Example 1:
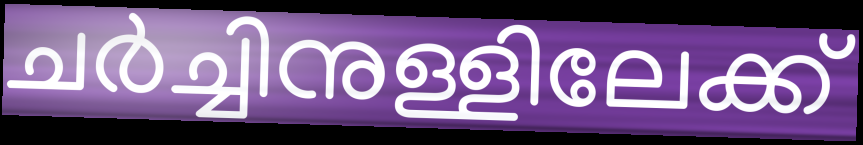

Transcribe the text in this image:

ചർച്ചിനുള്ളിലേക്ക്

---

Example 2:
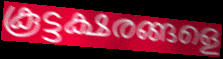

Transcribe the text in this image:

കൂട്ടക്ഷരങ്ങളെ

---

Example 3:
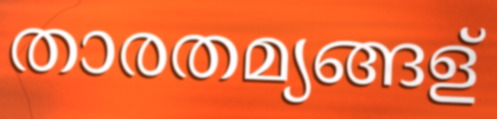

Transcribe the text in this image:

താരതമ്യങ്ങള്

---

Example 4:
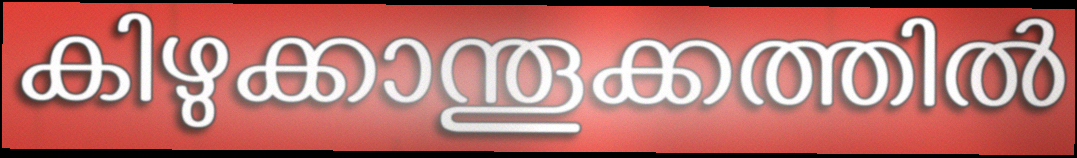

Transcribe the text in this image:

കിഴുക്കാന്തൂക്കത്തിൽ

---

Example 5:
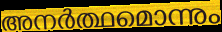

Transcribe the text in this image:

അനർത്ഥമൊന്നും